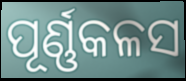
ପୂର୍ଣ୍ଣକଳସ